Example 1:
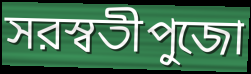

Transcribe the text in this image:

সরস্বতীপুজো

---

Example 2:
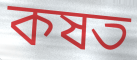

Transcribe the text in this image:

কষত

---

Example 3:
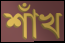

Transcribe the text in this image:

শাঁখ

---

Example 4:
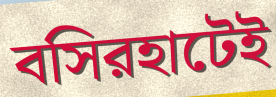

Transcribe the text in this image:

বসিরহাটেই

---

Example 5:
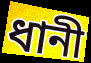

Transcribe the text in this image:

ধানী